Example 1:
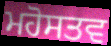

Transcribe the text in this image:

ਮਹੋਸਤਵ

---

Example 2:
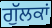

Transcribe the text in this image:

ਗੁੱਲਕਾਂ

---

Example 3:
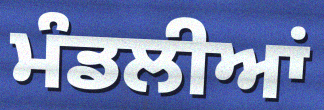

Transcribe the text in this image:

ਮੰਡਲੀਆਂ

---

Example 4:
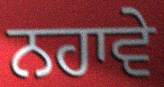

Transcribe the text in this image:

ਨਹਾਵੇ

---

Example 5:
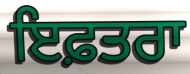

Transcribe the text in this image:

ਇਫ਼ਤਰਾ